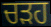
ਚੜਹ